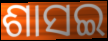
ଶାସଇ